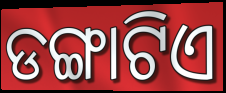
ଡଙ୍ଗାଟିଏ